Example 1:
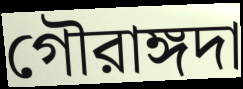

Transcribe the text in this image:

গৌরাঙ্গদা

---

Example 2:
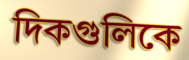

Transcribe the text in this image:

দিকগুলিকে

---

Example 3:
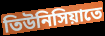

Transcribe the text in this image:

তিউনিসিয়াতে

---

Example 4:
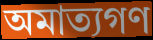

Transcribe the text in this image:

অমাত্যগণ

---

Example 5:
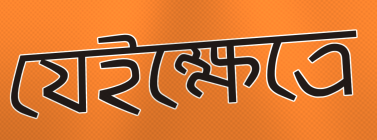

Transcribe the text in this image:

যেইক্ষেত্রে